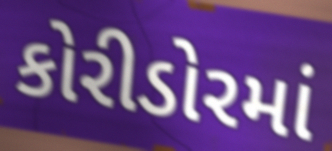
કોરીડોરમાં